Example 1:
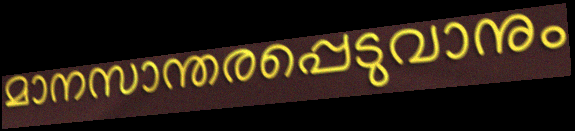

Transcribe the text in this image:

മാനസാന്തരപ്പെടുവാനും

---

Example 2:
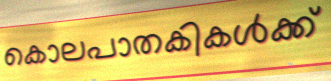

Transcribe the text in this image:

കൊലപാതകികൾക്ക്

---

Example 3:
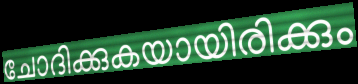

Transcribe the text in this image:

ചോദിക്കുകയായിരിക്കും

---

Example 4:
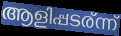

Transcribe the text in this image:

ആളിപ്പടര്ന്ന്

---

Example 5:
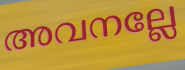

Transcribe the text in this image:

അവനല്ലേ